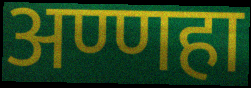
अण्णहा